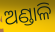
ଅଣ୍ଡାଳି